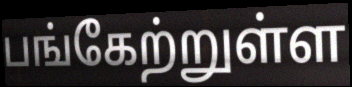
பங்கேற்றுள்ள